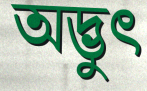
অদ্ভুৎ